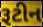
રૂટીન